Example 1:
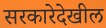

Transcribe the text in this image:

सरकारेदेखील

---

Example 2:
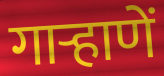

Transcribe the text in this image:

गार्‍हाणें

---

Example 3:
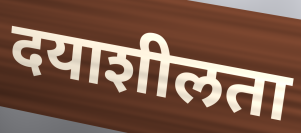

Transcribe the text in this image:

दयाशीलता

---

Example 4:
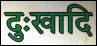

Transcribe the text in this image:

दुःखादि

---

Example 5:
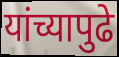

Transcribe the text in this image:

यांच्यापुढे